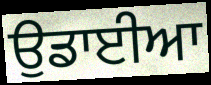
ਉਡਾਈਆ